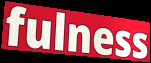
fulness